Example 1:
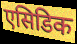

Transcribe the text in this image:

एसिडिक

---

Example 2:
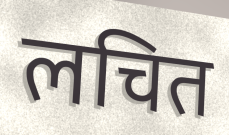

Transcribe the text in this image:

लचित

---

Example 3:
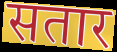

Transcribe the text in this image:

सतार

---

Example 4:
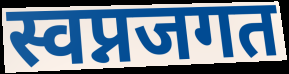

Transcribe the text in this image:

स्वप्नजगत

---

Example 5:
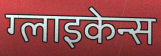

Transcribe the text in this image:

ग्लाइकेन्स